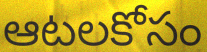
ఆటలకోసం